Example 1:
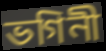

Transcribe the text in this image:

ভগিনী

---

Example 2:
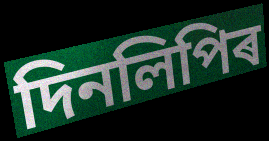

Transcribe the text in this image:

দিনলিপিৰ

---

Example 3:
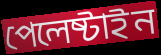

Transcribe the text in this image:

পেলেষ্টাইন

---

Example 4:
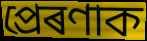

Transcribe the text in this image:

প্ৰেৰণাক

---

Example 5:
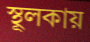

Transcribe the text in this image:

স্থূলকায়